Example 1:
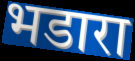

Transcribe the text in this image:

भडारा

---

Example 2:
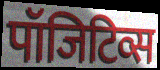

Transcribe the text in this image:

पॉजिटिव्स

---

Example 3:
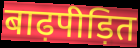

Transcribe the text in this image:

बाढ़पीड़ित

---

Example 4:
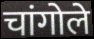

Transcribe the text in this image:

चांगोले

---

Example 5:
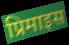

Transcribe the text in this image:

प्रिमाइस